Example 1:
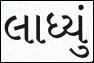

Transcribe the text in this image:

લાધ્યું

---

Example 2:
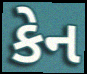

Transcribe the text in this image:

કેન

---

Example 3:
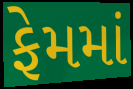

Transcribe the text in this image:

ફેમમાં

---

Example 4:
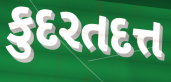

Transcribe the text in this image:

કુદરતદત્ત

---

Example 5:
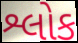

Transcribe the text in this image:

શ્લોક